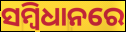
ସମ୍ବିଧାନରେ